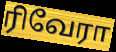
ரிவேரா